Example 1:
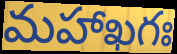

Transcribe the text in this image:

మహాఖగః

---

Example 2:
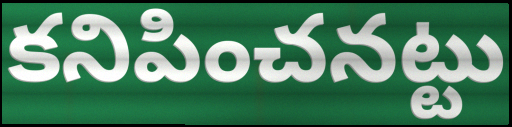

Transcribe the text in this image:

కనిపించనట్టు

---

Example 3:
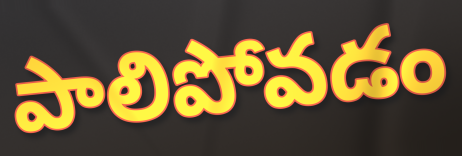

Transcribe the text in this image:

పాలిపోవడం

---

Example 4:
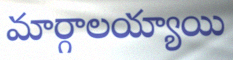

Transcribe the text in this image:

మార్గాలయ్యాయి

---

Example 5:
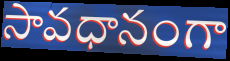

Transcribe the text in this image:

సావధానంగా